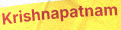
Krishnapatnam